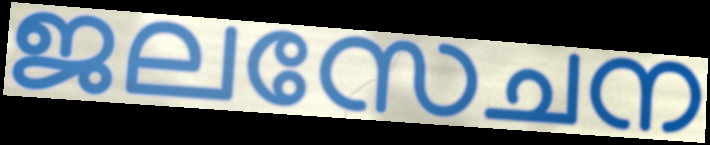
ജലസേചന